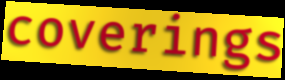
coverings